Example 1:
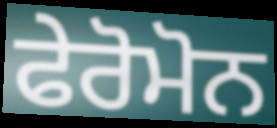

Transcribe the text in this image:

ਫੇਰੋਮੋਨ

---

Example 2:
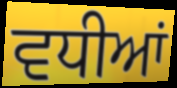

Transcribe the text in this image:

ਵਧੀਆਂ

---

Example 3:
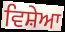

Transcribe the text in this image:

ਵਿਸ਼ੇਆ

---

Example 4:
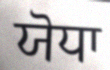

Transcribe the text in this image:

ਯੋਧਾ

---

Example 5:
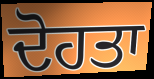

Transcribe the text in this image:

ਦੋਹਤਾ